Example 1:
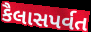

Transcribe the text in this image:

કૈલાસપર્વત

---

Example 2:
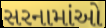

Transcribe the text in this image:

સરનામાંઓ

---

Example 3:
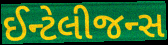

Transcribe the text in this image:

ઈન્ટેલીજન્સ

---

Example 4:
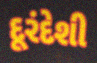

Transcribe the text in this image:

દૂરંદેશી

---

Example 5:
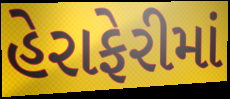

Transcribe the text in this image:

હેરાફેરીમાં